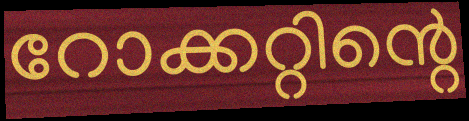
റോക്കറ്റിന്റെ